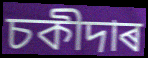
চকীদাৰ